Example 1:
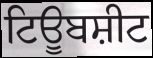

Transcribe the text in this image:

ਟਿਊਬਸ਼ੀਟ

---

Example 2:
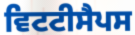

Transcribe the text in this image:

ਵਿਟਟੀਸੈਪਸ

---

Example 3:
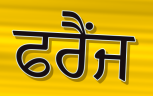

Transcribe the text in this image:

ਫਰੈਂਜ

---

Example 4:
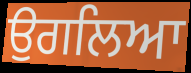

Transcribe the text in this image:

ਉਗਲਿਆ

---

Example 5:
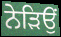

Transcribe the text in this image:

ਨੇੜਿਉਂ